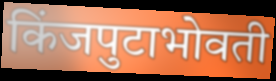
किंजपुटाभोवती